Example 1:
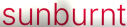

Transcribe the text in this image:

sunburnt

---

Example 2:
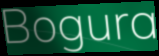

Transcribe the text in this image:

Bogura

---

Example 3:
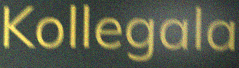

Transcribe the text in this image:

Kollegala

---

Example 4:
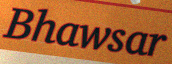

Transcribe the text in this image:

Bhawsar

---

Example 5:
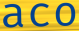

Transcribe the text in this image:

aco